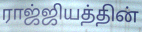
ராஜ்ஜியத்தின்